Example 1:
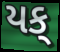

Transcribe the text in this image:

યક્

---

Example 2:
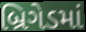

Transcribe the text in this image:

બ્રિગેડમાં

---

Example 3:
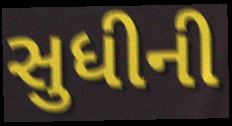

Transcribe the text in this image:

સુધીની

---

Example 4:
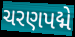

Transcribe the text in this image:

ચરણપદ્મે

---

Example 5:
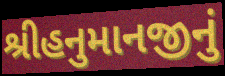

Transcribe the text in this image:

શ્રીહનુમાનજીનું